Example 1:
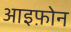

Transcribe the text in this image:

आइफ़ोन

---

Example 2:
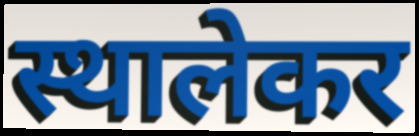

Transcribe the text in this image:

स्थालेकर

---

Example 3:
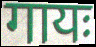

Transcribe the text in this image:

गायः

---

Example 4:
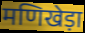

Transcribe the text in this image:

मणिखेड़ा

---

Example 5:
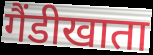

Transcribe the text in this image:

गैंडीखाता